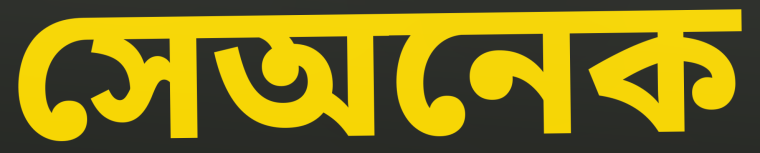
সেঅনেক